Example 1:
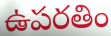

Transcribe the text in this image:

ఉపరతిం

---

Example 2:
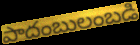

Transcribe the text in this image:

పాదంబులంబడి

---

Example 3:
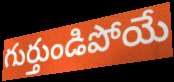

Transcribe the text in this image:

గుర్తుండిపోయే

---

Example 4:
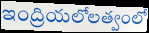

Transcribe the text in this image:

ఇంద్రియలోలత్వంలో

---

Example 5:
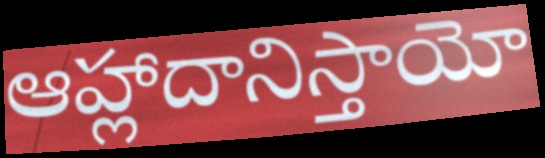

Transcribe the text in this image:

ఆహ్లాదానిస్తాయో